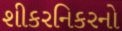
શીકરનિકરનો